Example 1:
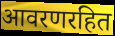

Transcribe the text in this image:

आवरणरहित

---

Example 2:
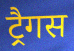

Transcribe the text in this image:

ट्रैगस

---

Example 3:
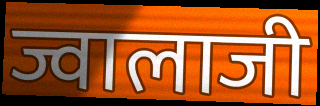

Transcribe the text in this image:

ज्वालाजी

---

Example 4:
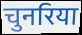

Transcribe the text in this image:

चुनरिया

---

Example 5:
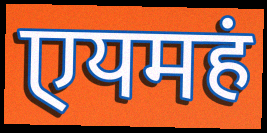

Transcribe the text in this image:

एयमहं